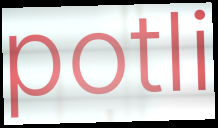
potli